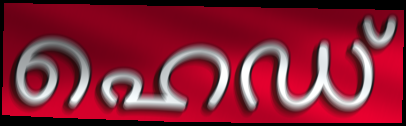
ഹെഡ്